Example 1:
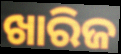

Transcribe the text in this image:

ଖାରିଜ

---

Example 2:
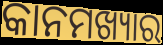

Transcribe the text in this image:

କାନମଖ୍ୟାର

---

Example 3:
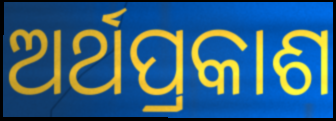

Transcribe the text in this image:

ଅର୍ଥପ୍ରକାଶ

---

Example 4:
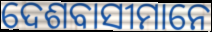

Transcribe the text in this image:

ଦେଶବାସୀମାନେ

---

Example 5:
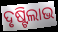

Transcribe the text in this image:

ଦୃଷ୍ଟିଲାଭ